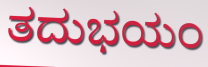
ತದುಭಯಂ